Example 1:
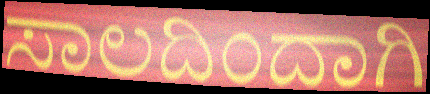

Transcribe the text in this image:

ಸಾಲದಿಂದಾಗಿ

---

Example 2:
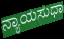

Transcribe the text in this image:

ನ್ಯಾಯಸುಧಾ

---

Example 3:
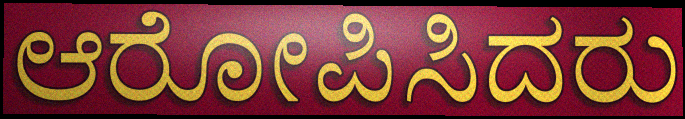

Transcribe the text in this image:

ಆರೋಪಿಸಿದರು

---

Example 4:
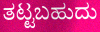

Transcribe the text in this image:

ತಟ್ಟಬಹುದು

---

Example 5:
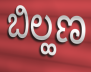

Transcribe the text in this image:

ಬಿಲ್ಹಣ